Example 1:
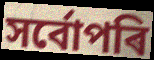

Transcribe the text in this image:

সৰ্বোপৰি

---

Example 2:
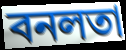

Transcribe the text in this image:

বনলতা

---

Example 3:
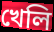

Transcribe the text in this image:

খেলি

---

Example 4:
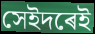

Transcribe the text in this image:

সেইদৰেই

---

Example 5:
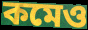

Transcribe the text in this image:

কমেও